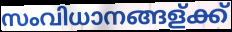
സംവിധാനങ്ങള്ക്ക്